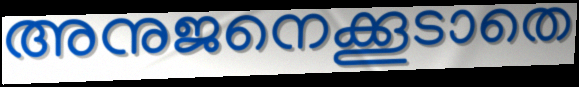
അനുജനെക്കൂടാതെ